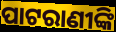
ପାଟରାଣୀଙ୍କି